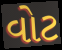
વોટ